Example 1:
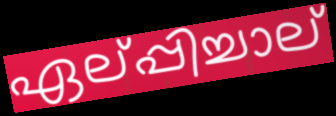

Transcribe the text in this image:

ഏല്പ്പിച്ചാല്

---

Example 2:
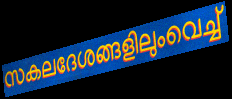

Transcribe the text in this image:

സകലദേശങ്ങളിലുംവെച്ച്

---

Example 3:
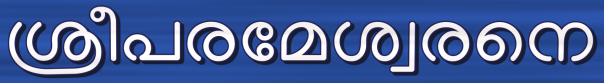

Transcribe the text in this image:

ശ്രീപരമേശ്വരനെ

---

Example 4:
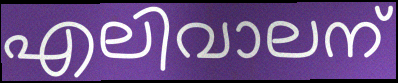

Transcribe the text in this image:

എലിവാലന്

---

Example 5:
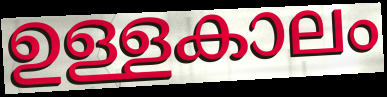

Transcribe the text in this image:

ഉള്ളകാലം